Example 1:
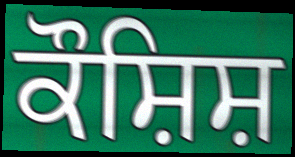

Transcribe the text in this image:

ਕੌਸ਼ਿਸ਼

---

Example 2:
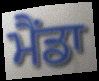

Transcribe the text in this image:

ਮੈਂਡਾ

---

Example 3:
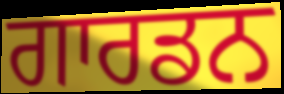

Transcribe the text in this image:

ਗਾਰਡਨ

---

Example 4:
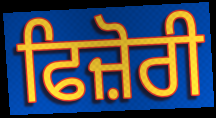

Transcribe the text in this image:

ਫਿਜ਼ੋਰੀ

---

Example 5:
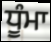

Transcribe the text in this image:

ਧੂੰਮਾ